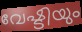
വേഷ്ടിയും